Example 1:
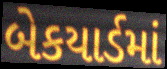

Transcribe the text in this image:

બેકયાર્ડમાં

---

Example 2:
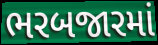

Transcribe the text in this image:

ભરબજારમાં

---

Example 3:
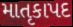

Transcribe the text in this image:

માતૃકાપદ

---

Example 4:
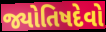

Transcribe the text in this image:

જ્યોતિષદેવો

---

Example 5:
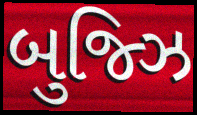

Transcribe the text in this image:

બુજ્ઝિ